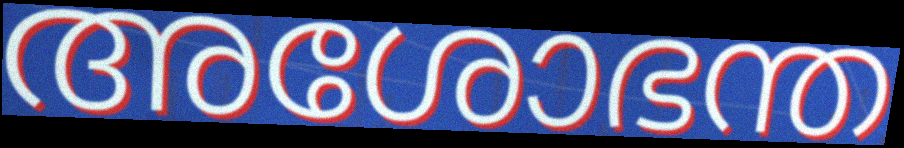
അശോഭന്ത